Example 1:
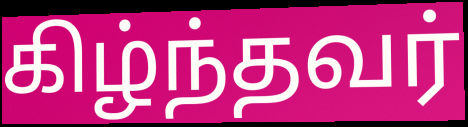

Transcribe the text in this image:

கிழ்ந்தவர்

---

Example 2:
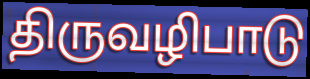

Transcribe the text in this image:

திருவழிபாடு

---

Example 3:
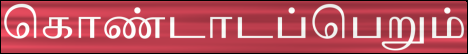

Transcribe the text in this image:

கொண்டாடப்பெறும்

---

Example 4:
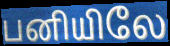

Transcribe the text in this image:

பனியிலே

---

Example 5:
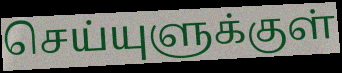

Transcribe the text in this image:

செய்யுளுக்குள்